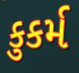
કુકર્મ